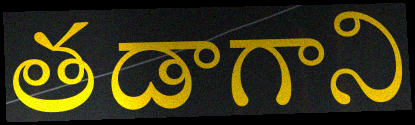
తడాగాని